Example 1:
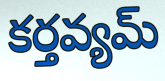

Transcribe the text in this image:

కర్తవ్యమ్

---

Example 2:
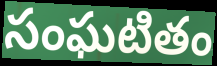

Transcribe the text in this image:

సంఘటితం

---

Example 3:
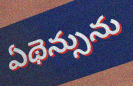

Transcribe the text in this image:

ఏథెన్సును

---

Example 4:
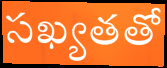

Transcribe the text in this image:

సఖ్యతతో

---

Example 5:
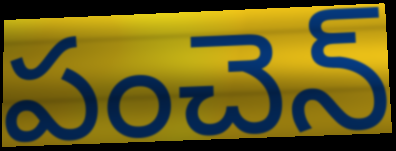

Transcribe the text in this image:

పంచెన్